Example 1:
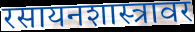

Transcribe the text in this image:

रसायनशास्त्रावर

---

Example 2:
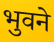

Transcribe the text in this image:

भुवने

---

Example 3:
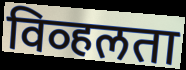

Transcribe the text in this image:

विव्हलता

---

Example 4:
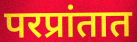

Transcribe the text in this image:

परप्रांतात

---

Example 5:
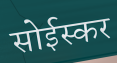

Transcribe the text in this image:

सोईस्कर